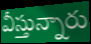
వీస్తున్నారు